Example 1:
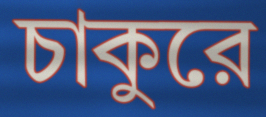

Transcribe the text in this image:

চাকুরে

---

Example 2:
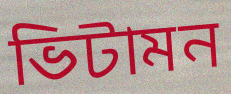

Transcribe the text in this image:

ভিটামন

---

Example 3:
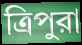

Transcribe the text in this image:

ত্রিপুরা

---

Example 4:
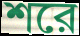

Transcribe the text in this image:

শরে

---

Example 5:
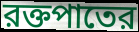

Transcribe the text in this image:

রক্তপাতের